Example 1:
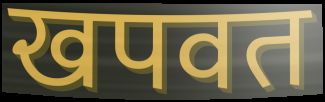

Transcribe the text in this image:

खपवत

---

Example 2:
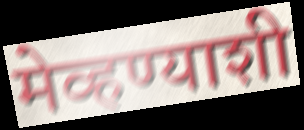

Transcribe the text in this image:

मेव्हण्याशी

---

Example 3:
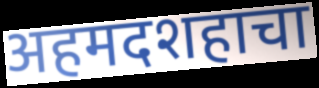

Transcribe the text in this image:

अहमदशहाचा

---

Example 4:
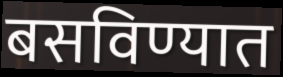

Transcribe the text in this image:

बसविण्यात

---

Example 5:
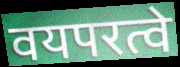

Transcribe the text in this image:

वयपरत्वे